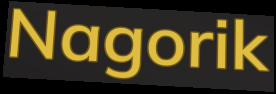
Nagorik